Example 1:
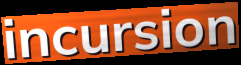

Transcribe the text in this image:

incursion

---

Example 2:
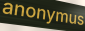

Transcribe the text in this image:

anonymus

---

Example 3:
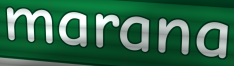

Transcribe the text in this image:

marana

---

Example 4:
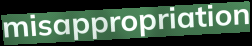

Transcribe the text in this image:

misappropriation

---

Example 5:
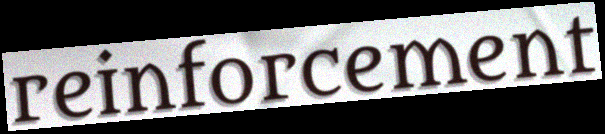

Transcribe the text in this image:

reinforcement